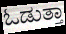
ಓಡುತ್ತಾ